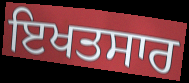
ਇਖਤਸਾਰ